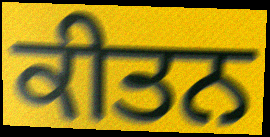
ਕੀਤਨ